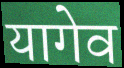
यागेव